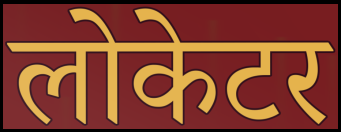
लोकेटर